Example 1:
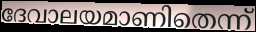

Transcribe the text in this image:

ദേവാലയമാണിതെന്ന്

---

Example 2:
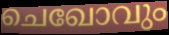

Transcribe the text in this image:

ചെഖോവും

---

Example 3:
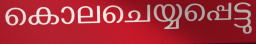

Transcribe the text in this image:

കൊലചെയ്യപ്പെട്ടു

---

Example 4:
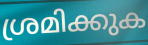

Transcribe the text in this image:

ശ്രമിക്കുക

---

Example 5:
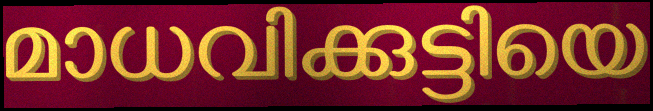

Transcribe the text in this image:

മാധവിക്കുട്ടിയെ